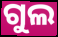
ଗୁଲ